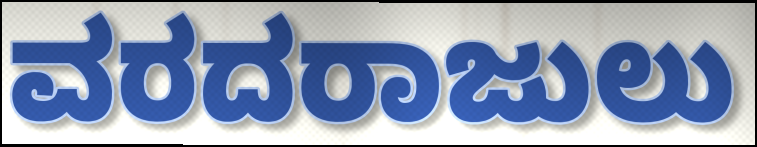
ವರದರಾಜುಲು